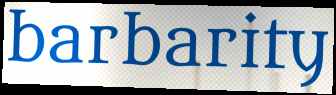
barbarity